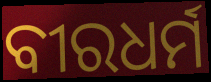
ବୀରଧର୍ମ